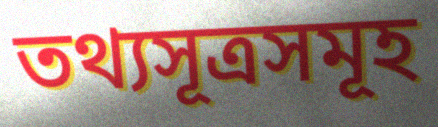
তথ্যসূত্ৰসমূহ